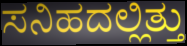
ಸನಿಹದಲ್ಲಿತ್ತು